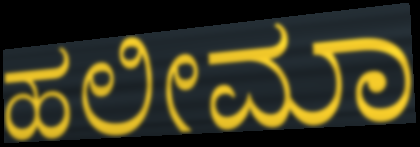
ಹಲೀಮಾ